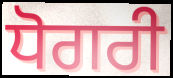
ਧੋਗਰੀ